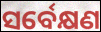
ସର୍ବେକ୍ଷଣ